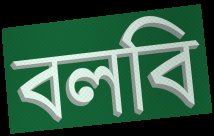
বলবি